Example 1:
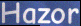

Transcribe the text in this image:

Hazor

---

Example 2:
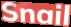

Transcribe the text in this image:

Snail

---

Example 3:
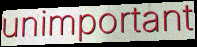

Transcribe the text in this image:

unimportant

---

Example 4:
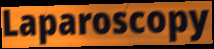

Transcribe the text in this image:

Laparoscopy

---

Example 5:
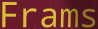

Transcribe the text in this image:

Frams